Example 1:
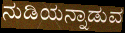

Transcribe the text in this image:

ನುಡಿಯನ್ನಾಡುವ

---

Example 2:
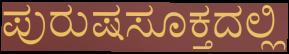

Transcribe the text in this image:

ಪುರುಷಸೂಕ್ತದಲ್ಲಿ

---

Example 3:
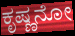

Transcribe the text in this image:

ಕೃಷ್ಣನೋ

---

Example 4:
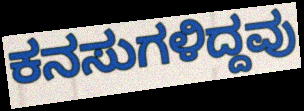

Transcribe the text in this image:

ಕನಸುಗಳಿದ್ದವು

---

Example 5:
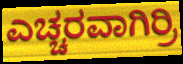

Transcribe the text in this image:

ಎಚ್ಚರವಾಗಿರ್ರಿ